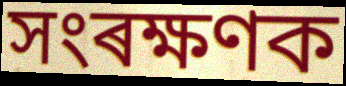
সংৰক্ষণক